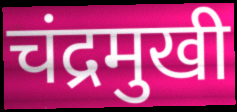
चंद्रमुखी